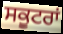
ਸਕੂਟਰਾਂ